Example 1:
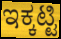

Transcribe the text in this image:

ಇಕ್ಕಟ್ಟಿ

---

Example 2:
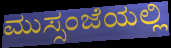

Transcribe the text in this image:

ಮುಸ್ಸಂಜೆಯಲ್ಲಿ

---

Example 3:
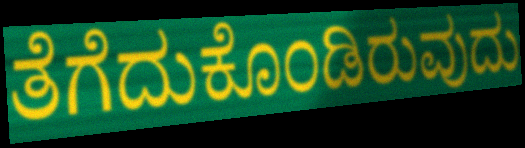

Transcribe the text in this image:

ತೆಗೆದುಕೊಂಡಿರುವುದು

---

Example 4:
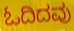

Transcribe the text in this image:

ಓದಿದವು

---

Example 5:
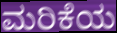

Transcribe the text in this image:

ಮರಿಕೆಯ